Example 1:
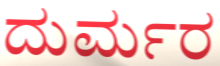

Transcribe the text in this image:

ದುರ್ಮರ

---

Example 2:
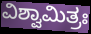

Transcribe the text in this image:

ವಿಶ್ವಾಮಿತ್ರಃ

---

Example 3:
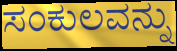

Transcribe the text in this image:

ಸಂಕುಲವನ್ನು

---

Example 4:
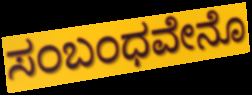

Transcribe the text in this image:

ಸಂಬಂಧವೇನೊ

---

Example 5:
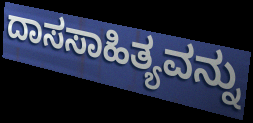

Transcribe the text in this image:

ದಾಸಸಾಹಿತ್ಯವನ್ನು